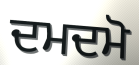
ਦਮਦਮੋ